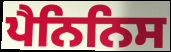
ਪੈਨਿਨਿਸ